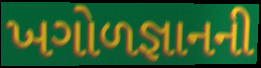
ખગોળજ્ઞાનની